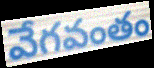
వేగవంతం